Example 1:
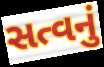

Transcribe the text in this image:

સત્વનું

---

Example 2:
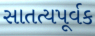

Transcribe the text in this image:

સાતત્યપૂર્વક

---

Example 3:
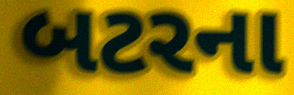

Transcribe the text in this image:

બટરના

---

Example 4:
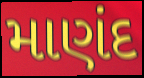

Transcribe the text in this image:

માણંદ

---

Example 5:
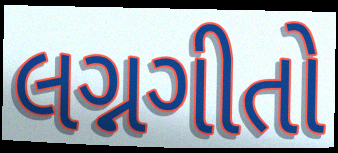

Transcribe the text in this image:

લગ્નગીતો